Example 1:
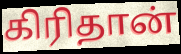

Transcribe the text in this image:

கிரிதான்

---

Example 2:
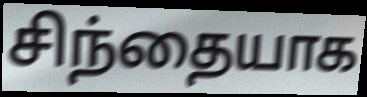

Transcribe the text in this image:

சிந்தையாக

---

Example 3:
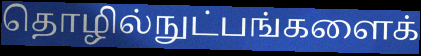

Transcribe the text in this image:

தொழில்நுட்பங்களைக்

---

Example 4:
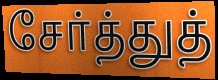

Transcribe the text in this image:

சேர்த்துத்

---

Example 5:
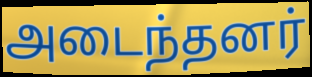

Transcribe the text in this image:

அடைந்தனர்